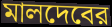
মালদেবের